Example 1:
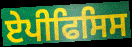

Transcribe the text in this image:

ਏਪੀਫਿਸਿਸ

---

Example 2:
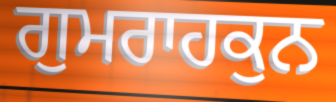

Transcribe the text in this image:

ਗੁਮਰਾਹਕੁਨ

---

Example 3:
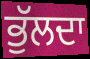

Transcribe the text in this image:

ਭੁੱਲਦਾ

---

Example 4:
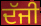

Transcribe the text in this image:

ਦੱਜੀ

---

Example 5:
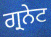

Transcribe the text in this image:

ਗ੍ਰਨੇਟ